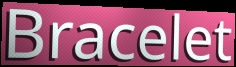
Bracelet